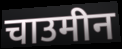
चाउमीन